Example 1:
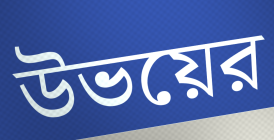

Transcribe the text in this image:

উভয়ের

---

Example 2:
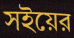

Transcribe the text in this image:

সইয়ের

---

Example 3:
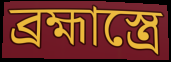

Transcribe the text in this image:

ব্রহ্মাস্ত্রে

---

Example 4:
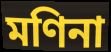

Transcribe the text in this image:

মণিনা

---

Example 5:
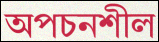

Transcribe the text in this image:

অপচনশীল